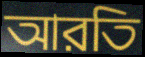
আরতি